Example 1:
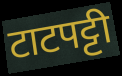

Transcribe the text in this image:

टाटपट्टी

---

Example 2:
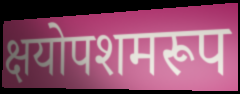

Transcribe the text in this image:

क्षयोपशमरूप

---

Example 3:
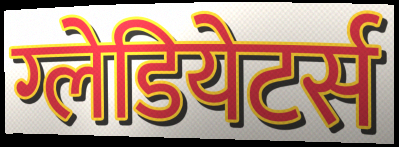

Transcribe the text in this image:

ग्लेडियेटर्स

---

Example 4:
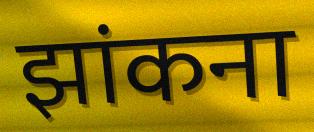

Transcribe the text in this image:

झांकना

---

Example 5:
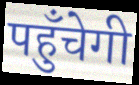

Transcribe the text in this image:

पहुँचेगी